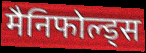
मैनिफोल्ड्स